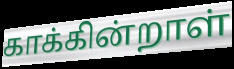
காக்கின்றாள்